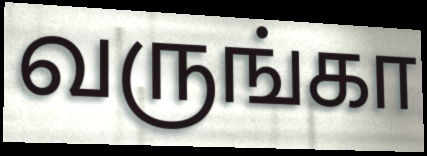
வருங்கா